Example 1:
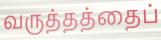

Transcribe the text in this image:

வருத்தத்தைப்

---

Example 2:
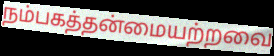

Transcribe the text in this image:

நம்பகத்தன்மையற்றவை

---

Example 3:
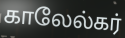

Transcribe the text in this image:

காலேல்கர்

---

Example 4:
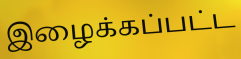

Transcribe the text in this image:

இழைக்கப்பட்ட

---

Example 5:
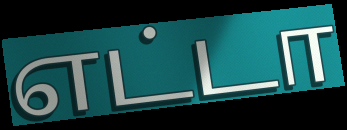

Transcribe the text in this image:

எட்டா